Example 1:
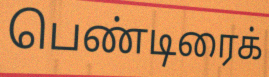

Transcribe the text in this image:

பெண்டிரைக்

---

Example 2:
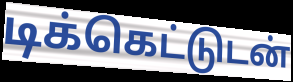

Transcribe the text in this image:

டிக்கெட்டுடன்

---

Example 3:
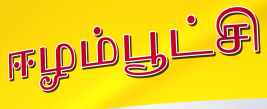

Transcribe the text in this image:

ஈழம்பூட்சி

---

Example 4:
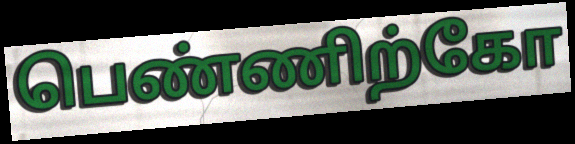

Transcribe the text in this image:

பெண்ணிற்கோ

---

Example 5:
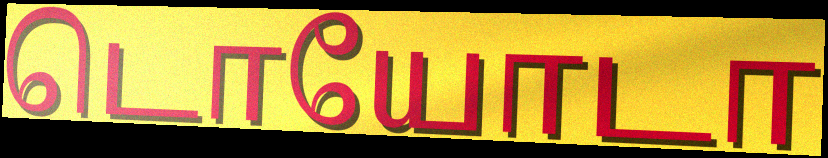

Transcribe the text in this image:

டொயோடா